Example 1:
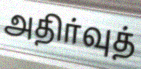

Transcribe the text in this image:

அதிர்வுத்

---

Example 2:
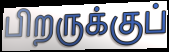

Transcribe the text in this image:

பிறருக்குப்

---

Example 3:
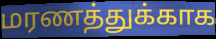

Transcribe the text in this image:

மரணத்துக்காக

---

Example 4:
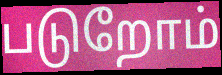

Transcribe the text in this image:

படுறோம்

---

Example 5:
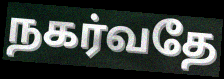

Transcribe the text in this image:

நகர்வதே